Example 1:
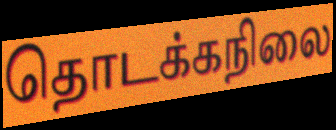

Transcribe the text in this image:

தொடக்கநிலை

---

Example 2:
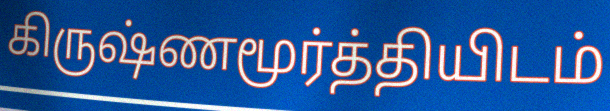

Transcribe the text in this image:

கிருஷ்ணமூர்த்தியிடம்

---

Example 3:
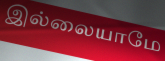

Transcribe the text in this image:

இல்லையாமே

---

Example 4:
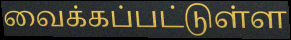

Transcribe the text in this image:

வைக்கப்பட்டுள்ள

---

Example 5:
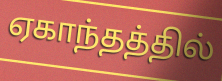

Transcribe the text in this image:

ஏகாந்தத்தில்